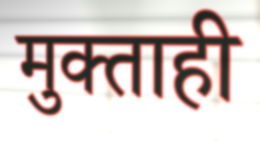
मुक्ताही